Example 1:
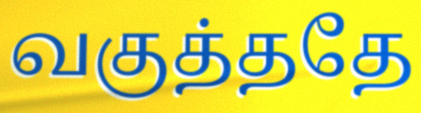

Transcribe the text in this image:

வகுத்ததே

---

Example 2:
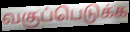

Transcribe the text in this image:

வகுப்பெடுக்க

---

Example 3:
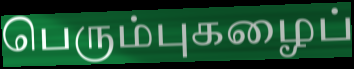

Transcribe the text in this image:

பெரும்புகழைப்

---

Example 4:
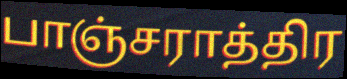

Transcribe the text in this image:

பாஞ்சராத்திர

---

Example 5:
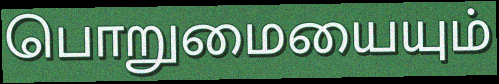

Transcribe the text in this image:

பொறுமையையும்